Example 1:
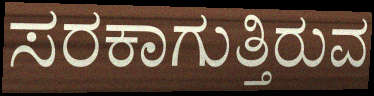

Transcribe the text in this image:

ಸರಕಾಗುತ್ತಿರುವ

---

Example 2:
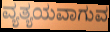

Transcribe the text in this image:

ವ್ಯತ್ಯಯವಾಗುವ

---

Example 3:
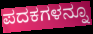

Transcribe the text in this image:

ಪದಕಗಳನ್ನೂ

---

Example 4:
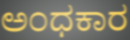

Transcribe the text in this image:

ಅಂಧಕಾರ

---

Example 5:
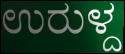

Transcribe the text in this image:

ಉರುಳ್ದ